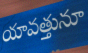
యావత్తునూ